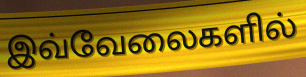
இவ்வேலைகளில்